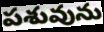
పశువును